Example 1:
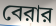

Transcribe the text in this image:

বেরার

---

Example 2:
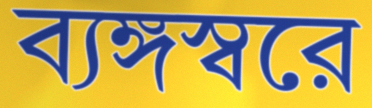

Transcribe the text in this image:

ব্যঙ্গস্বরে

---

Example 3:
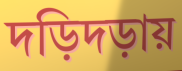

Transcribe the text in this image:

দড়িদড়ায়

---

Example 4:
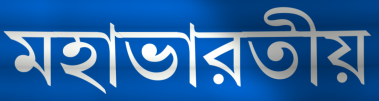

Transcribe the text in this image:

মহাভারতীয়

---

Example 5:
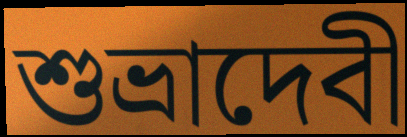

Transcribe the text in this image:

শুভ্রাদেবী